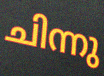
ചിന്നു